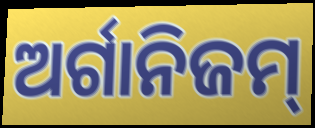
ଅର୍ଗାନିଜମ୍